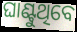
ଘାଣ୍ଟୁଥିବେ